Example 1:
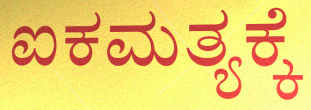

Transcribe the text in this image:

ಐಕಮತ್ಯಕ್ಕೆ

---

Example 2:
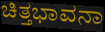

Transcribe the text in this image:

ಚಿತ್ತಭಾವನಾ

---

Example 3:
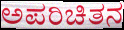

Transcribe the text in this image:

ಅಪರಿಚಿತನ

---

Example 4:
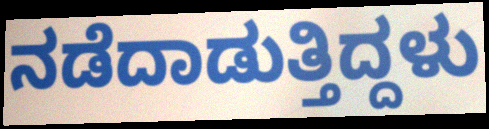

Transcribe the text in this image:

ನಡೆದಾಡುತ್ತಿದ್ದಳು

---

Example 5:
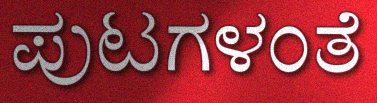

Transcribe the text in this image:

ಪುಟಗಳಂತೆ